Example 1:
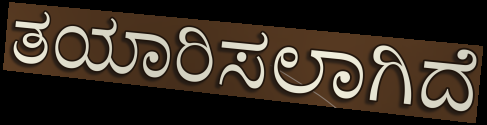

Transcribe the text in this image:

ತಯಾರಿಸಲಾಗಿದೆ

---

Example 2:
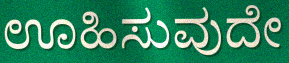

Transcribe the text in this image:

ಊಹಿಸುವುದೇ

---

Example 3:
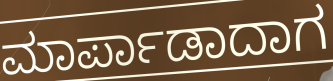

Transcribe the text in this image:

ಮಾರ್ಪಾಡಾದಾಗ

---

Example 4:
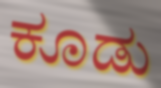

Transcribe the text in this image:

ಕೂಡು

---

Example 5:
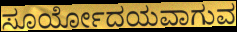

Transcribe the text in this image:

ಸೂರ್ಯೋದಯವಾಗುವ